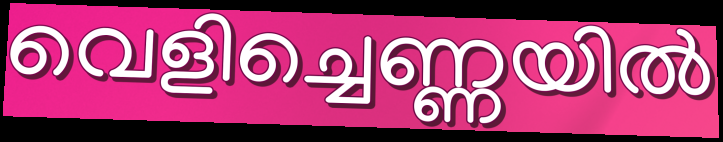
വെളിച്ചെണ്ണയിൽ